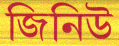
জিনিউ